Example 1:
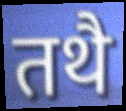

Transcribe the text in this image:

तथै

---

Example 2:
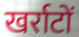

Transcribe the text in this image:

खर्राटों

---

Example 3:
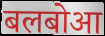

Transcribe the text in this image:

बलबोआ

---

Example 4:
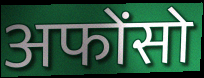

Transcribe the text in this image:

अफोंसो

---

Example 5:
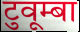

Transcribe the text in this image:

टुवूम्बा